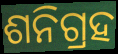
ଶନିଗ୍ରହ